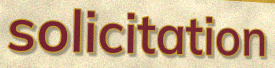
solicitation